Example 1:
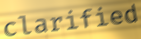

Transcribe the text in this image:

clarified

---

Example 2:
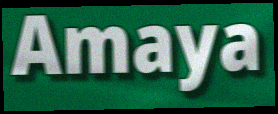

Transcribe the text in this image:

Amaya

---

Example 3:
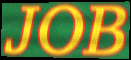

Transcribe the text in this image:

JOB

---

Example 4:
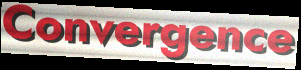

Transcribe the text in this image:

Convergence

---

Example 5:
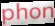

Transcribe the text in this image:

phon